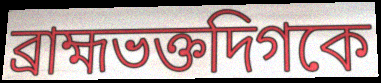
ব্রাহ্মভক্তদিগকে